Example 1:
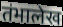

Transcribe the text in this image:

तंभालेख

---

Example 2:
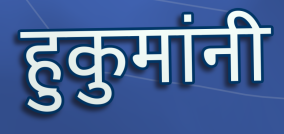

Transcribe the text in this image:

हुकुमांनी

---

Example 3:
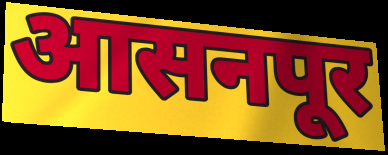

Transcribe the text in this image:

आसनपूर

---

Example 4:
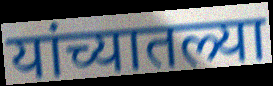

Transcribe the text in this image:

यांच्यातल्या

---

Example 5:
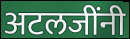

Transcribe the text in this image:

अटलजींनी